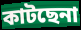
কাটছেনা